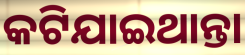
କଟିଯାଇଥାନ୍ତା